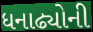
ધનાઢ્યોની